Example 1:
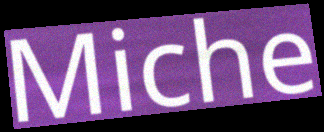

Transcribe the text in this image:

Miche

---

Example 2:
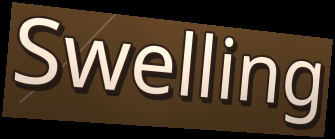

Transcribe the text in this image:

Swelling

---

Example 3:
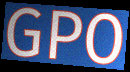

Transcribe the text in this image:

GPO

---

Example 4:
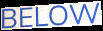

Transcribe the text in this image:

BELOW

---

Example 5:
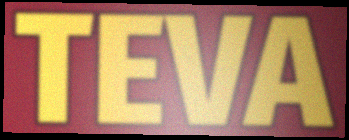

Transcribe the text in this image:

TEVA